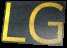
LG